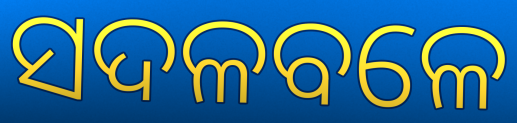
ସଦଳବଳେ